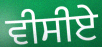
ਵੀਸੀਏ